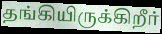
தங்கியிருக்கிறீர்